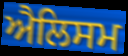
ਐਲਿਸਮ